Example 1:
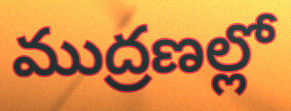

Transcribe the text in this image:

ముద్రణల్లో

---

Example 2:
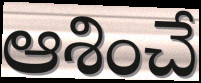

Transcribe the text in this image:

ఆశించే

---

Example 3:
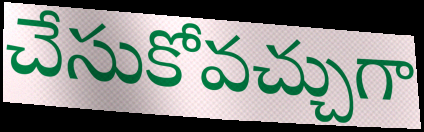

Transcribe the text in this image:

చేసుకోవచ్చుగా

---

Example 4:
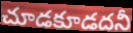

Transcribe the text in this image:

చూడకూడదనీ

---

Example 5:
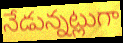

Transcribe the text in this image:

నేడున్నట్లుగా